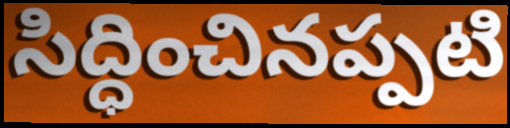
సిద్ధించినప్పటి